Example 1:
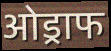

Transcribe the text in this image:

ओड्राफ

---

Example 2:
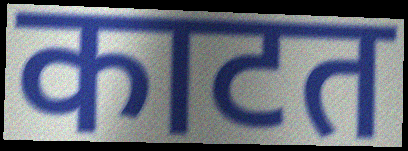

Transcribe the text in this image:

काटत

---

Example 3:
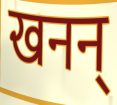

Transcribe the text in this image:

खनन्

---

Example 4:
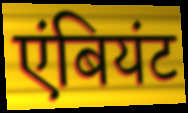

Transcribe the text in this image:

एंबियंट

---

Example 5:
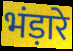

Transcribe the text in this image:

भंड़ारे